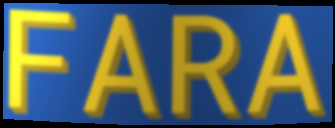
FARA